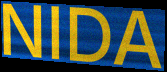
NIDA